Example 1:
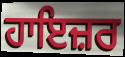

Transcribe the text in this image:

ਹਾਇਜ਼ਰ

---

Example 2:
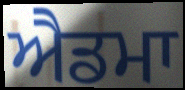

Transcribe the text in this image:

ਐਡਮਾ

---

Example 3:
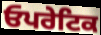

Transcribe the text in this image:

ਓਪਰੇਟਿਕ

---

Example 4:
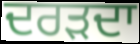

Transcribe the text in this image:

ਦਰੜਦਾ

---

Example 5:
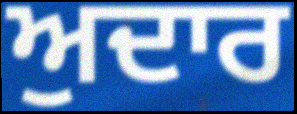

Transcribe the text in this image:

ਅੁਦਾਰ